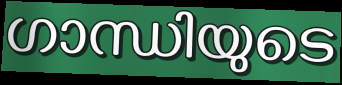
ഗാന്ധിയുടെ